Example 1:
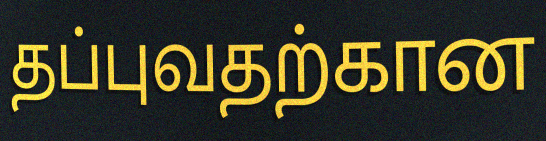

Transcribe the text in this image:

தப்புவதற்கான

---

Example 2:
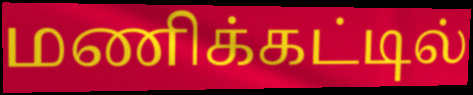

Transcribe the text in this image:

மணிக்கட்டில்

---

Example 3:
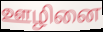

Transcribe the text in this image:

ஊழினை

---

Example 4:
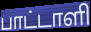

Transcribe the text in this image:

பாட்டாளி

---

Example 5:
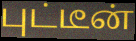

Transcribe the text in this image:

புட்டீன்